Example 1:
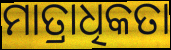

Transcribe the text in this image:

ମାତ୍ରାଧିକତା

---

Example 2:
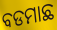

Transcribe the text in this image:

ବଡମାଛ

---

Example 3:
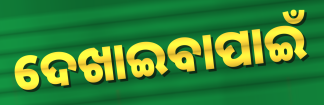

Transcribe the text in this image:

ଦେଖାଇବାପାଇଁ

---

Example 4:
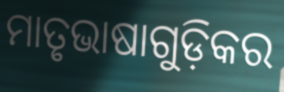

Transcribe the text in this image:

ମାତୃଭାଷାଗୁଡ଼ିକର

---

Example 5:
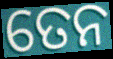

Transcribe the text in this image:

ତେନ